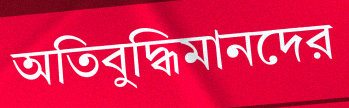
অতিবুদ্ধিমানদের